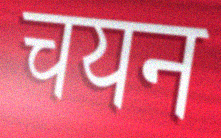
चयन